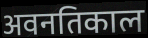
अवनतिकाल